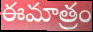
ఈమాత్రం